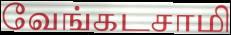
வேங்கடசாமி